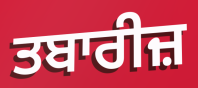
ਤਬਾਰੀਜ਼